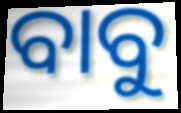
ବାବୁ